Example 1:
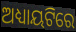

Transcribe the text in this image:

ଅଧ୍ୟାୟଟିରେ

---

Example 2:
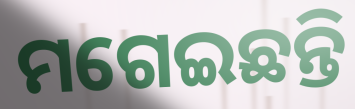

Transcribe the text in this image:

ମଗେଇଛନ୍ତି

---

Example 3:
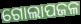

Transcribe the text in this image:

ଗୋଲାପଜଳ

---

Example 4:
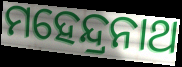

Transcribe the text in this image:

ମହେନ୍ଦ୍ରନାଥ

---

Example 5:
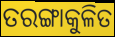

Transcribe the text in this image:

ତରଙ୍ଗାକୁଳିତ